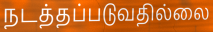
நடத்தப்படுவதில்லை